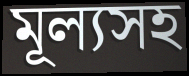
মূল্যসহ